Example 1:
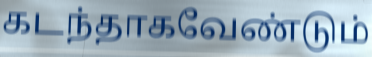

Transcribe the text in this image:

கடந்தாகவேண்டும்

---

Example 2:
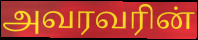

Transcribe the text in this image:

அவரவரின்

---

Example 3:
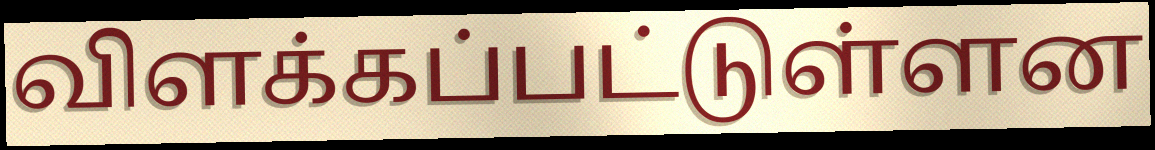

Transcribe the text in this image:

விளக்கப்பட்டுள்ளன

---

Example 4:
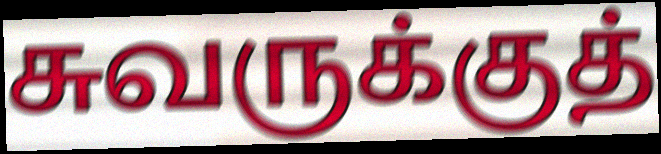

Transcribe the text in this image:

சுவருக்குத்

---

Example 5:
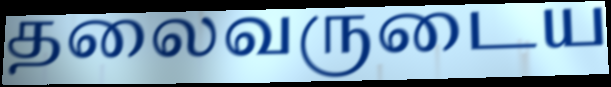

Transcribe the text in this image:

தலைவருடைய